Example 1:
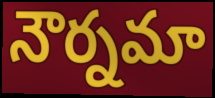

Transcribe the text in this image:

నౌర్నమా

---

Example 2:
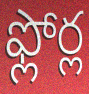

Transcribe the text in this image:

ఫ్లోర్ల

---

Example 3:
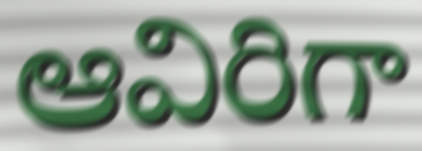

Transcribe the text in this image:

ఆవిరిగా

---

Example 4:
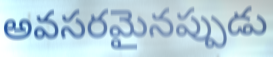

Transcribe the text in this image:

అవసరమైనప్పుడు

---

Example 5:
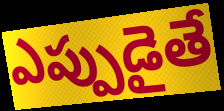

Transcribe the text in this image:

ఎప్పుడైతే